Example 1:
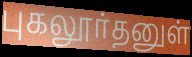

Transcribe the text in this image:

புகலூர்தனுள்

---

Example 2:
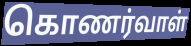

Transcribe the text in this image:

கொணர்வாள்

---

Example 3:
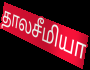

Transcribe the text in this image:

தாலசீமியா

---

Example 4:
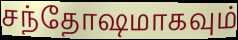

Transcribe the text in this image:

சந்தோஷமாகவும்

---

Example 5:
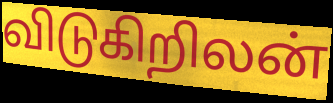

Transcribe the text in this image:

விடுகிறிலன்